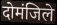
दोमंजिले